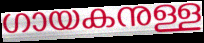
ഗായകനുള്ള